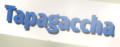
Tapagaccha